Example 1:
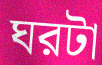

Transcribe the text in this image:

ঘরটা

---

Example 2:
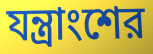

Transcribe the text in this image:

যন্ত্রাংশের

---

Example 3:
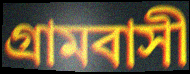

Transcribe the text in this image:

গ্রামবাসী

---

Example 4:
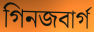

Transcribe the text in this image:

গিনজবার্গ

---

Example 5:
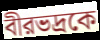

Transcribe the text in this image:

বীরভদ্রকে